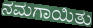
ನಮಗಾಯಿತು